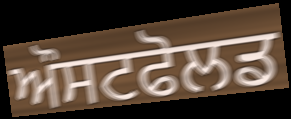
ਔਸਟਫੋਲਡ